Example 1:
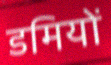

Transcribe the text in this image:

डमियों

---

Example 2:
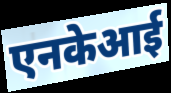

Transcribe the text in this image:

एनकेआई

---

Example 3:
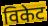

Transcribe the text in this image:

विकेट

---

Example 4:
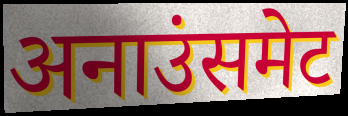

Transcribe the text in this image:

अनाउंसमेट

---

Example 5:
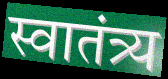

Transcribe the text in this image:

स्वातंत्र्य